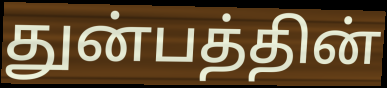
துன்பத்தின்